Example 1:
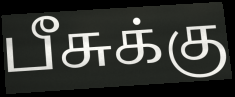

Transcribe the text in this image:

பீசுக்கு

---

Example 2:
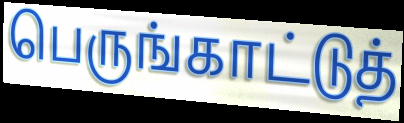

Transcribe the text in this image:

பெருங்காட்டுத்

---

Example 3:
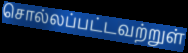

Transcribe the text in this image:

சொல்லப்பட்டவற்றுள்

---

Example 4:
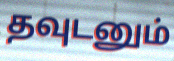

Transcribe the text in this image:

தவுடனும்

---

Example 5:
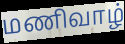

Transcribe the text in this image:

மணிவாழ்